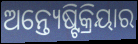
ଅନ୍ତ୍ୟେଷ୍ଟିକ୍ରିୟାର